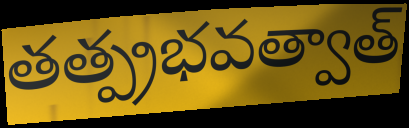
తత్ప్రభవత్వాత్